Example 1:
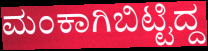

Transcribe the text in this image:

ಮಂಕಾಗಿಬಿಟ್ಟಿದ್ದ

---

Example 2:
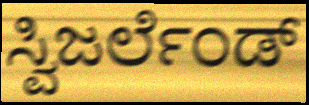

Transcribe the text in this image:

ಸ್ವಿಜರ್ಲೆಂಡ್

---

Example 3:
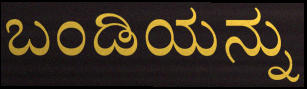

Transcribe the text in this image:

ಬಂಡಿಯನ್ನು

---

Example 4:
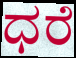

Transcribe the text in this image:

ಧರೆ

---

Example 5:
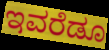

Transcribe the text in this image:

ಇವರೆಡೂ